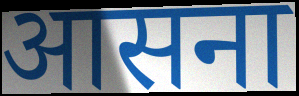
आसना